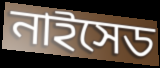
নাইসেড